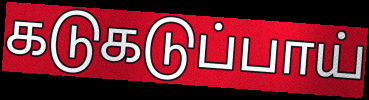
கடுகடுப்பாய்